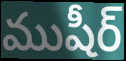
ముషీర్